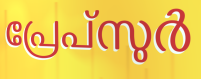
പ്രേപ്സുർ